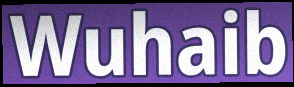
Wuhaib